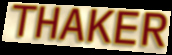
THAKER